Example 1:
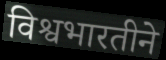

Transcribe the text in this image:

विश्वभारतीने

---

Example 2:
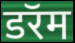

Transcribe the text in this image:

डरॅम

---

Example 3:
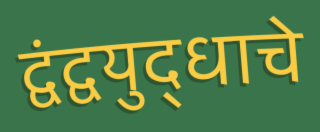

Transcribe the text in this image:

द्वंद्वयुद्धाचे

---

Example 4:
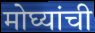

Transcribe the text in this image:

मोघ्यांची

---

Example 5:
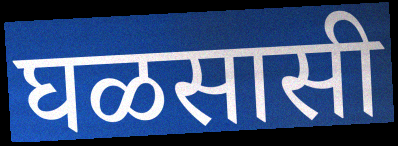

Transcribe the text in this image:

घळसासी